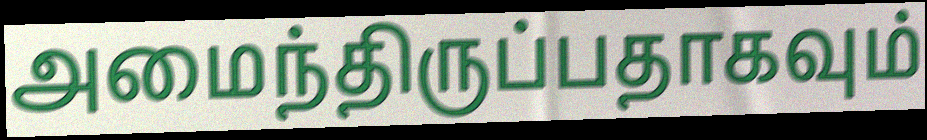
அமைந்திருப்பதாகவும்